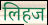
लिहज